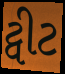
ટ્વીટ